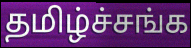
தமிழ்ச்சங்க